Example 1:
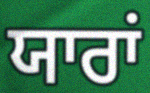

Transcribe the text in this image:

ਯਾਰਾਂ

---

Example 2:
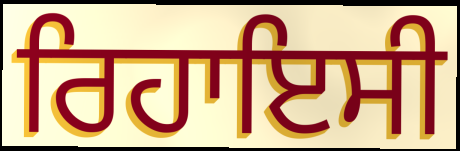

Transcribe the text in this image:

ਰਿਹਾਇਸੀ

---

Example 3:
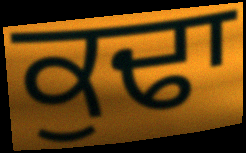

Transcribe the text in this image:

ਕੁਢਾ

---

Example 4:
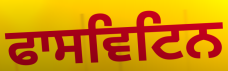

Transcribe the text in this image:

ਫਾਸਵਿਟਿਨ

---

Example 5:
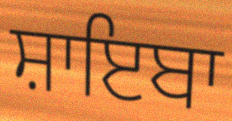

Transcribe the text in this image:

ਸ਼ਾਇਬਾ